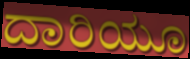
ದಾರಿಯೂ